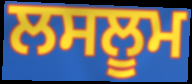
ਲਸਲੂਮ